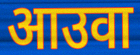
आउवा